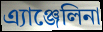
এ্যাঞ্জেলিনা